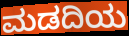
ಮಡದಿಯ